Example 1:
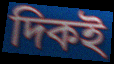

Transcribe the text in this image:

দিকই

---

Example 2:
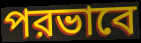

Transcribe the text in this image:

পরভাবে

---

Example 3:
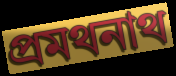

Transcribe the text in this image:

প্রমথনাথ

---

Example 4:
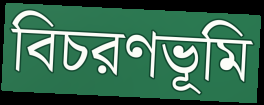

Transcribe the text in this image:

বিচরণভূমি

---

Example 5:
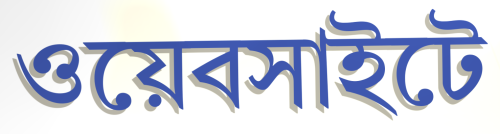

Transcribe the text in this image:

ওয়েবসাইটে